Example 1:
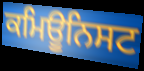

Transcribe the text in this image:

ਕਮਿਊਨਿਸਟ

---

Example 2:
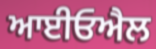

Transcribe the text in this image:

ਆਈਓਐਲ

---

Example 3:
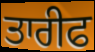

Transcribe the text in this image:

ਤਾਰੀਫ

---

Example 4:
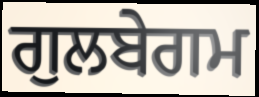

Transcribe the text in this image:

ਗੁਲਬੇਗਮ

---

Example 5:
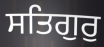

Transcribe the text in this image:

ਸਤਿਗੁਰੁ